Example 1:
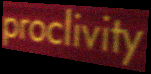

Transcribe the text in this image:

proclivity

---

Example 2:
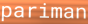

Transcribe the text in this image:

pariman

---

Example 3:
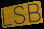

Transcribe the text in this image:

LSB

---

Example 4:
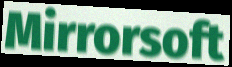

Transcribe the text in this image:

Mirrorsoft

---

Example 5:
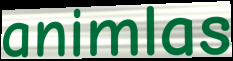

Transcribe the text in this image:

animlas